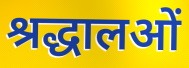
श्रद्धालओं